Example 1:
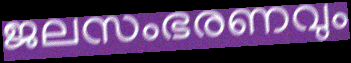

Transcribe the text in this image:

ജലസംഭരണവും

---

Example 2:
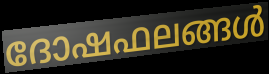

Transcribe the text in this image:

ദോഷഫലങ്ങൾ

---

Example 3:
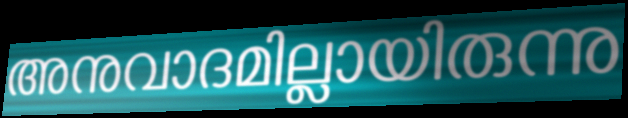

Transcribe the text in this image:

അനുവാദമില്ലായിരുന്നു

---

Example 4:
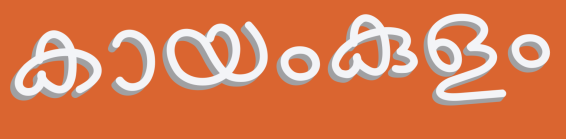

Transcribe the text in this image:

കായംകുളം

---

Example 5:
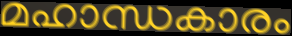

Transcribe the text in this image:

മഹാന്ധകാരം